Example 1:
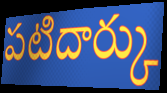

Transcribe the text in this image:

పటిదార్కు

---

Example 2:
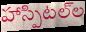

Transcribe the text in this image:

హాస్పిటల్‌ల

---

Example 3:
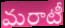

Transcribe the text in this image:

మరాటీ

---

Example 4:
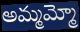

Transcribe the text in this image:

అమ్మమ్మో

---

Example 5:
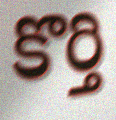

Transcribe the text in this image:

కొర్తి